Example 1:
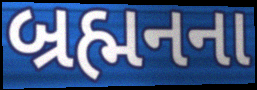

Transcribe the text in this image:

બ્રહ્મનના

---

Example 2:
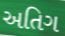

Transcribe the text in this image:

અતિગ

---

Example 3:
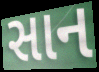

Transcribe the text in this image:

સાન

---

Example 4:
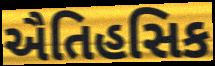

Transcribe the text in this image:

ઐતિહસિક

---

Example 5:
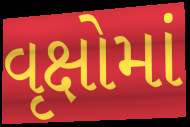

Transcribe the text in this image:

વૃક્ષોમાં